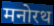
मनोरथ